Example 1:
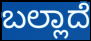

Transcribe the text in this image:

ಬಲ್ಲಾದೆ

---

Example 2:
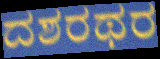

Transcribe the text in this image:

ದಶರಥರ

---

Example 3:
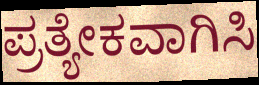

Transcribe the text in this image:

ಪ್ರತ್ಯೇಕವಾಗಿಸಿ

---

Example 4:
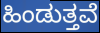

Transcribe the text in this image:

ಹಿಂಡುತ್ತವೆ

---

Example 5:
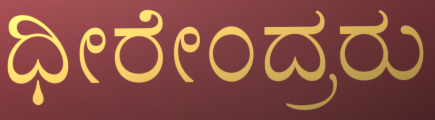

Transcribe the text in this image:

ಧೀರೇಂದ್ರರು